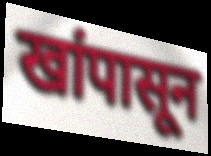
खांपासून